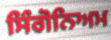
ਸਿੰਗੋਨਿਅਮ